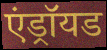
एंड्रॉयड